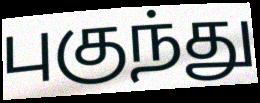
புகுந்து